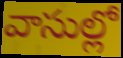
వాసుల్లో